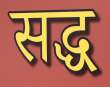
सद्ध